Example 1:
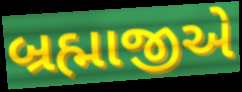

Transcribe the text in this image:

બ્રહ્માજીએ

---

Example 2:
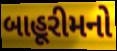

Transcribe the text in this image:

બાહૂરીમનો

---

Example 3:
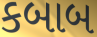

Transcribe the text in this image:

કબાબ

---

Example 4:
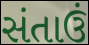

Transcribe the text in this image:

સંતાઉં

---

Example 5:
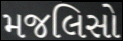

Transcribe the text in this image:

મજલિસો